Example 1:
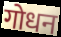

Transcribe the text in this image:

गोधन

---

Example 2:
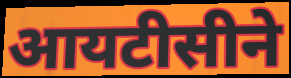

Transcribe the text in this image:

आयटीसीने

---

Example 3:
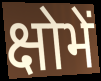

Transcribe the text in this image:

क्षोभें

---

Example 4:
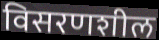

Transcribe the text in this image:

विसरणशील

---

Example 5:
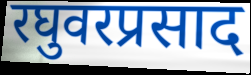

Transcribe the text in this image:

रघुवरप्रसाद